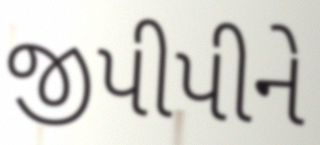
જીપીપીને